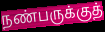
நண்பருக்குத்